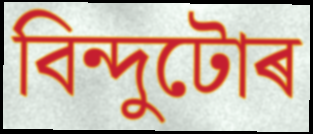
বিন্দুটোৰ